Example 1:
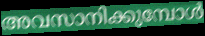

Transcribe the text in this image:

അവസാനിക്കുമ്പോൾ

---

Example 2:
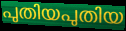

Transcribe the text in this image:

പുതിയപുതിയ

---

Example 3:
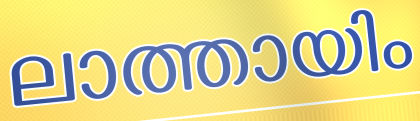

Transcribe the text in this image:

ലാത്തായിം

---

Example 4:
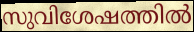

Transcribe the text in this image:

സുവിശേഷത്തിൽ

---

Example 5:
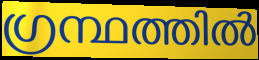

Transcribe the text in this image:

ഗ്രന്ഥത്തിൽ